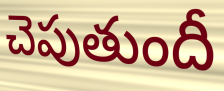
చెపుతుందీ